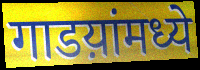
गाडय़ांमध्ये